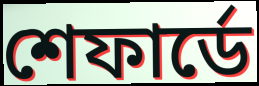
শেফার্ডে